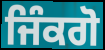
ਜਿੰਕਗੋ